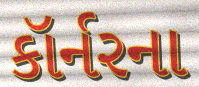
કૉર્નરના